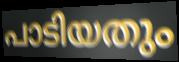
പാടിയതും